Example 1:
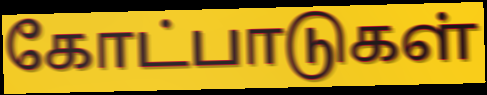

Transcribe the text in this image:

கோட்பாடுகள்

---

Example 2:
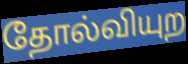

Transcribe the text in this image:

தோல்வியுற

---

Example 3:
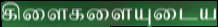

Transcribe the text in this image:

கிளைகளையுடைய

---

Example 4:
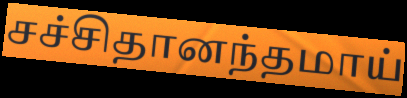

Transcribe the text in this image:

சச்சிதானந்தமாய்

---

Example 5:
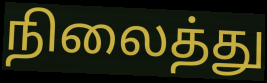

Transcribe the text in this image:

நிலைத்து